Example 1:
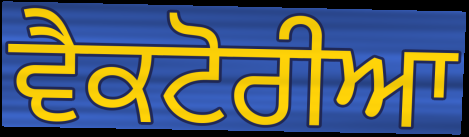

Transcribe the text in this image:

ਵੈਕਟੋਰੀਆ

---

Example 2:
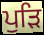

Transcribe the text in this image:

ਪੁੜਿ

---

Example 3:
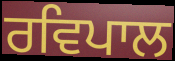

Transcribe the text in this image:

ਰਵਿਪਾਲ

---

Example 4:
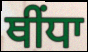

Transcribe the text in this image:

ਥੀਂਧਾ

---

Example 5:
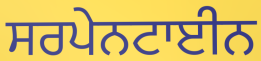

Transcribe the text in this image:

ਸਰਪੇਨਟਾਈਨ